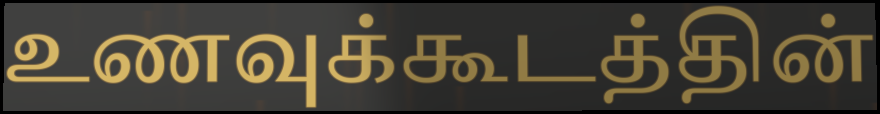
உணவுக்கூடத்தின்